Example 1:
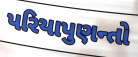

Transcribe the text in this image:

પરિયાપુણન્તો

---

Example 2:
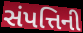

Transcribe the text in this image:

સંપત્તિની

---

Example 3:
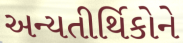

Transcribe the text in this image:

અન્યતીર્થિકોને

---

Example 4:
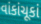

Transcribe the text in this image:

વાંકાંચૂકાં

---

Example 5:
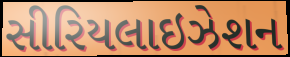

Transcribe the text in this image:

સીરિયલાઇઝેશન